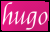
hugo